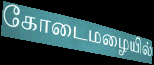
கோடைமழையில்